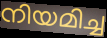
നിയമിച്ച